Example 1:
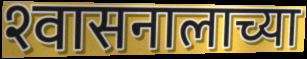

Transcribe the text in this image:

श्वासनालाच्या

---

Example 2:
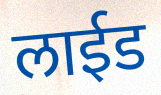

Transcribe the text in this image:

लाईड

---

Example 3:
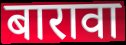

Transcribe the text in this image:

बारावा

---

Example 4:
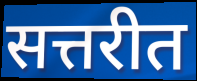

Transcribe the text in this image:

सत्तरीत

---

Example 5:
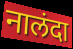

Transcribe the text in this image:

नालंदा